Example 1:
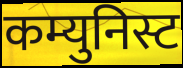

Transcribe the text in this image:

कम्युनिस्ट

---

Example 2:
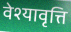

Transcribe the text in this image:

वेश्यावृत्ति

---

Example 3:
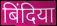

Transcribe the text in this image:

बिंदिया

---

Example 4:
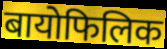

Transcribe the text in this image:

बायोफिलिक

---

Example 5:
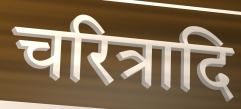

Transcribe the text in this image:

चरित्रादि